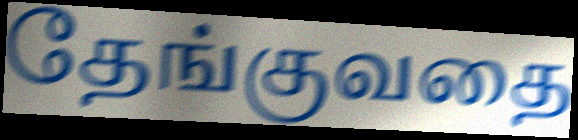
தேங்குவதை